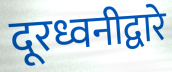
दूरध्वनीद्वारे